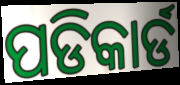
ପଡିକାର୍ଡ